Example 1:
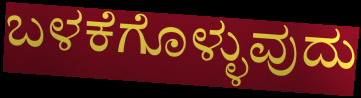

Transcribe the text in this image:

ಬಳಕೆಗೊಳ್ಳುವುದು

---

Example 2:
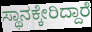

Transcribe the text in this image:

ಸ್ಥಾನಕ್ಕೇರಿದ್ದಾರೆ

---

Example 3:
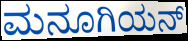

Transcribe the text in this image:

ಮನೂಗಿಯನ್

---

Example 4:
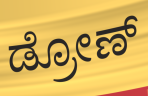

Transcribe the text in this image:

ಡ್ರೋಣ್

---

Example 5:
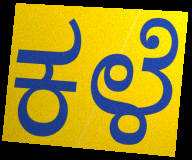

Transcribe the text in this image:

ಕಳೆ